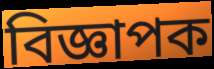
বিজ্ঞাপক